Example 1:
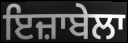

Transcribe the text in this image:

ਇਜ਼ਾਬੇਲਾ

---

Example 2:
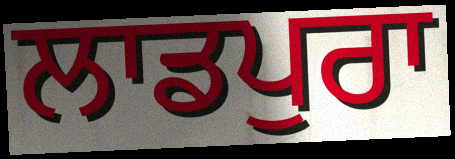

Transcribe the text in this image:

ਲਾਡਪੁਰਾ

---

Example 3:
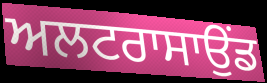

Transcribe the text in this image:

ਅਲਟਰਾਸਾਉਂਡ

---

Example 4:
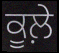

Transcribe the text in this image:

ਕੂਲ਼ੇ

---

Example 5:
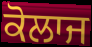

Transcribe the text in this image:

ਕੋਲਾਜ